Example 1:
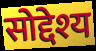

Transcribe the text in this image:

सोद्देश्य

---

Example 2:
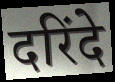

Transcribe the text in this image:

दरिंदे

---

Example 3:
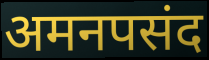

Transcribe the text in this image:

अमनपसंद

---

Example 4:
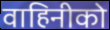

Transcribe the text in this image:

वाहिनीको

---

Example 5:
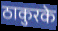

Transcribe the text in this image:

ठाकुरके